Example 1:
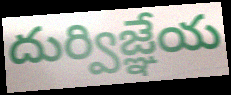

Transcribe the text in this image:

దుర్విజ్ఞేయ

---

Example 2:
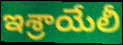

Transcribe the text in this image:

ఇశ్రాయేలీ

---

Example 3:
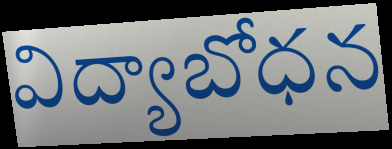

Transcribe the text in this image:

విద్యాబోధన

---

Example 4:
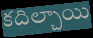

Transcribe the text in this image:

కదిల్చాయి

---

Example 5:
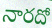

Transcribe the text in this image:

నారదో